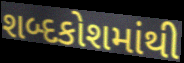
શબ્દકોશમાંથી